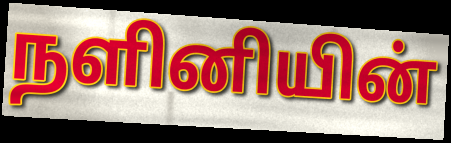
நளினியின்